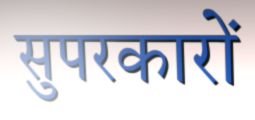
सुपरकारों